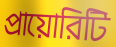
প্রায়োরিটি